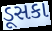
ડૂસકા